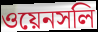
ওয়েনসলি